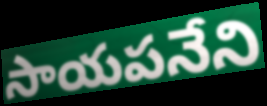
సాయపనేని